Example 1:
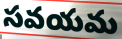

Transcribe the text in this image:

సవయమ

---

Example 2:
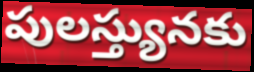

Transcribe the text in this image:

పులస్త్యునకు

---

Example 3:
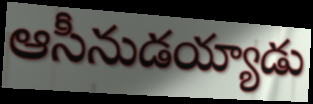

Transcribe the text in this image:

ఆసీనుడయ్యాడు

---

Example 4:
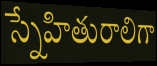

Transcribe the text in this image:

స్నేహితురాలిగా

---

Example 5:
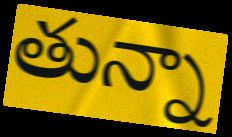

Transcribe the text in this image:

తున్నా